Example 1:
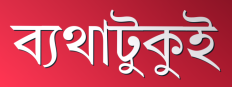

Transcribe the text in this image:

ব্যথাটুকুই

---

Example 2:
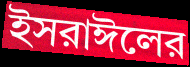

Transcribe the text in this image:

ইসরাঈলের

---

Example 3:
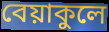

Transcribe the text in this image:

বেয়াকুলে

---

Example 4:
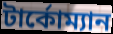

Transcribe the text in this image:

টার্কোম্যান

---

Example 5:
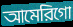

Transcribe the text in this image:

আমেরিগো